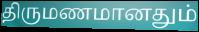
திருமணமானதும்